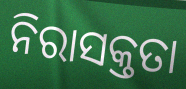
ନିରାସକ୍ତତା